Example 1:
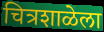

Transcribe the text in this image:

चित्रशाळेला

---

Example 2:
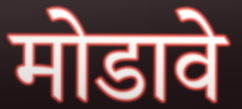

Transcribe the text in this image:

मोडावे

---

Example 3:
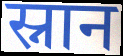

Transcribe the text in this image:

स्नान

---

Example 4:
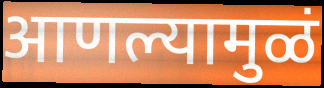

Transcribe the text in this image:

आणल्यामुळं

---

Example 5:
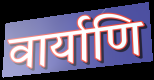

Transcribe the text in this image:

वार्याणि